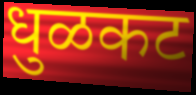
धुळकट